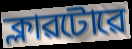
ক্লাৱটোৱে